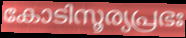
കോടിസൂര്യപ്രഭഃ